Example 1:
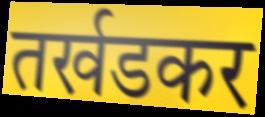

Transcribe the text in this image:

तर्खडकर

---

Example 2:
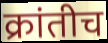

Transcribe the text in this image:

क्रांतीच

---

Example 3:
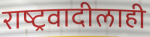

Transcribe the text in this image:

राष्ट्रवादीलाही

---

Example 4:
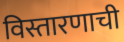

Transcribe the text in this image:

विस्तारणाची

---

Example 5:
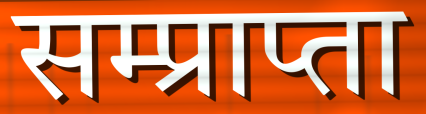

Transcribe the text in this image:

सम्प्राप्ता